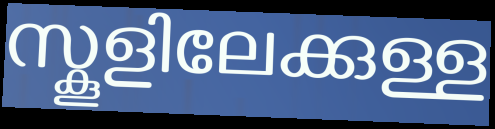
സ്കൂളിലേക്കുള്ള